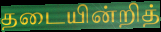
தடையின்றித்